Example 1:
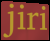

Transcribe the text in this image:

jiri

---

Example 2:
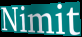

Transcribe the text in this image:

Nimit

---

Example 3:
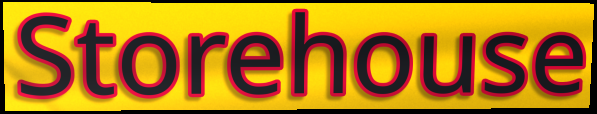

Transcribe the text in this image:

Storehouse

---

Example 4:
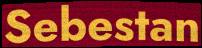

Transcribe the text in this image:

Sebestan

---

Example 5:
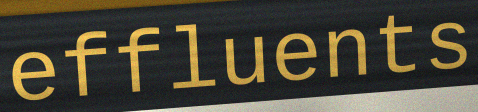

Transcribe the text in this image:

effluents